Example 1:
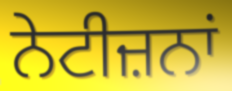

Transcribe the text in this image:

ਨੇਟੀਜ਼ਨਾਂ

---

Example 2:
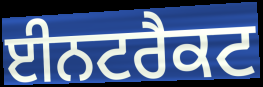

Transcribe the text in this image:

ਈਨਟਰੈਕਟ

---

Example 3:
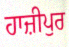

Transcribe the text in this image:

ਹਾਜ਼ੀਪੁਰ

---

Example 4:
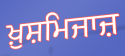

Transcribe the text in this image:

ਖ਼ੁਸ਼ਮਿਜਾਜ਼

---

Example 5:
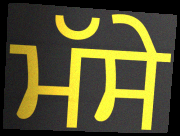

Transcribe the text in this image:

ਮੱਸੇ